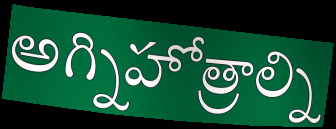
అగ్నిహోత్రాల్ని